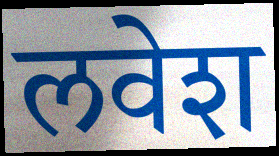
लवेश